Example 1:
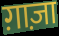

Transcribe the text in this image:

ग़ाज़ा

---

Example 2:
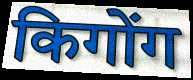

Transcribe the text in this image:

किगोंग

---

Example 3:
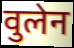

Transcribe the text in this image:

वुलेन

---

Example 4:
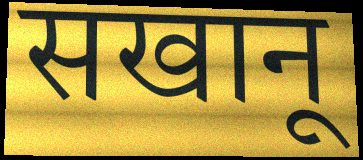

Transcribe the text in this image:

सखानू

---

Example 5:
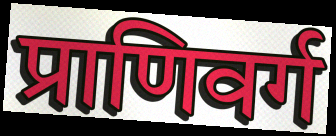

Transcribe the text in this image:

प्राणिवर्ग